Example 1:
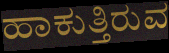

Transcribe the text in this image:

ಹಾಕುತ್ತಿರುವ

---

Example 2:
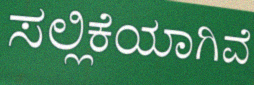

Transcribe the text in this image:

ಸಲ್ಲಿಕೆಯಾಗಿವೆ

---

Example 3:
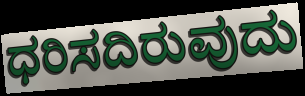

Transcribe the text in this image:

ಧರಿಸದಿರುವುದು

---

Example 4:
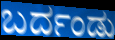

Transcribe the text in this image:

ಬರ್ದಂಡು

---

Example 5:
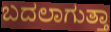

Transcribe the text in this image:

ಬದಲಾಗುತ್ತಾ